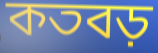
কতবড়